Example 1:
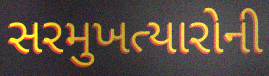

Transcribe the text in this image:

સરમુખત્યારોની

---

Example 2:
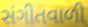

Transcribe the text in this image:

સંગીતવાળી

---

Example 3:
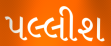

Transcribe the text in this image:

પલ્લીશ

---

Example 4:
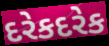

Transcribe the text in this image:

દરેકદરેક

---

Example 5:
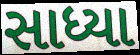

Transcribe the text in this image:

સાધ્યા